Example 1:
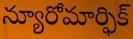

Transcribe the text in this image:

న్యూరోమార్ఫిక్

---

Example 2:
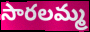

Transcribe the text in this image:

సారలమ్మ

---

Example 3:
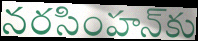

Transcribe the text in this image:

నరసింహన్‌కు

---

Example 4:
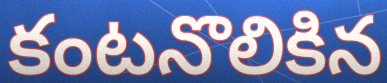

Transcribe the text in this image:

కంటనొలికిన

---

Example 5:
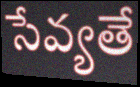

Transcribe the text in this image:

సేవ్యతే